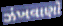
ઝંખવાણો